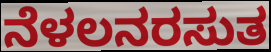
ನೆಳಲನರಸುತ